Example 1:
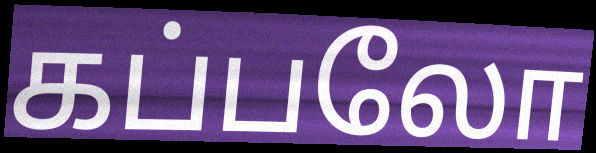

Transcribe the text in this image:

கப்பலோ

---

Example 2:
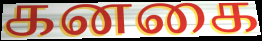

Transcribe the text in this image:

கனகை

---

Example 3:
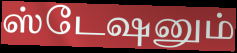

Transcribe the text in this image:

ஸ்டேஷனும்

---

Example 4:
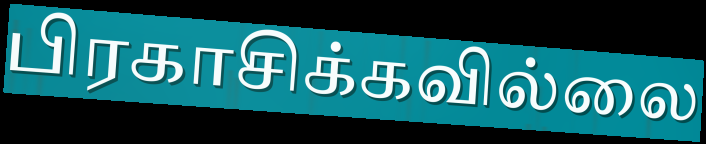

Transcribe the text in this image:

பிரகாசிக்கவில்லை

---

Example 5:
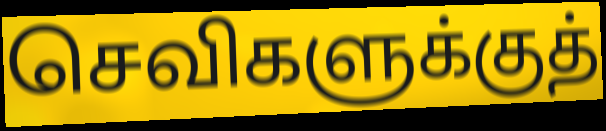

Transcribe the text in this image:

செவிகளுக்குத்